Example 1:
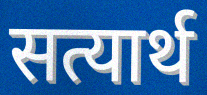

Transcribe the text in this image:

सत्यार्थ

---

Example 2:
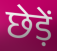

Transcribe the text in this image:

छेड़ें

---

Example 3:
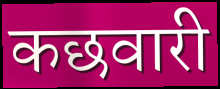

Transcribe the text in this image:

कछवारी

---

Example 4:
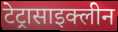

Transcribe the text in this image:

टेट्रासाइक्लीन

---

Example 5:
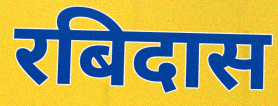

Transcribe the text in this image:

रबिदास